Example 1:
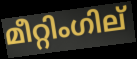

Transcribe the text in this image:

മീറ്റിംഗില്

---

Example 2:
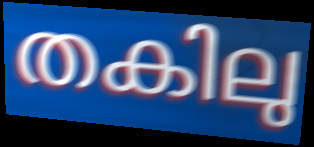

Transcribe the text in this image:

തകിലു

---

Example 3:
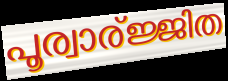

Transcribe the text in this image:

പൂര്വാര്ജ്ജിത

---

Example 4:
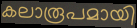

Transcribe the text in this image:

കലാരൂപമായി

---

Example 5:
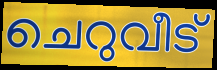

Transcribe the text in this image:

ചെറുവീട്